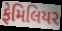
ફેમિલિયર